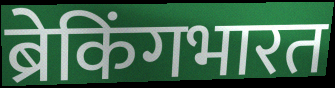
ब्रेकिंगभारत